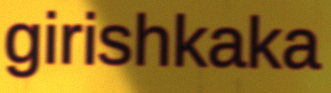
girishkaka